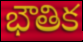
భౌతిక